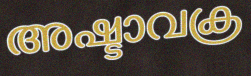
അഷ്ടാവക്ര